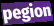
pegion